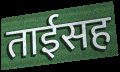
ताईसह